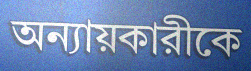
অন্যায়কারীকে